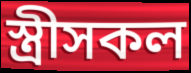
স্ত্ৰীসকল